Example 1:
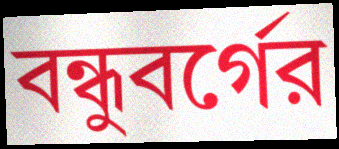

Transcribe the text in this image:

বন্ধুবর্গের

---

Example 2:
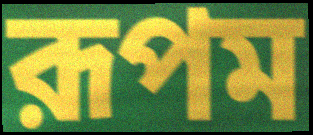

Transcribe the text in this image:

রূপম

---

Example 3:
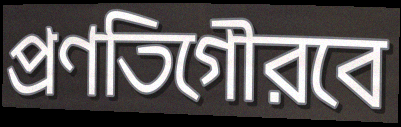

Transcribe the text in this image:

প্রণতিগৌরবে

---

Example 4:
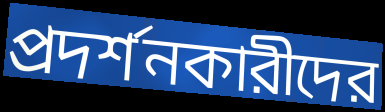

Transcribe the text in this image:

প্রদর্শনকারীদের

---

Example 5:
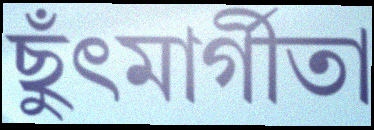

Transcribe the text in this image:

ছুঁৎমার্গীতা